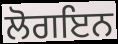
ਲੋਗਇਨ